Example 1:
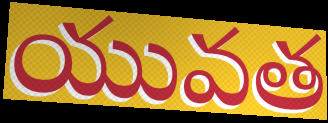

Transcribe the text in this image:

యువత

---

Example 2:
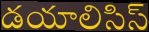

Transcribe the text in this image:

డయాలిసిస్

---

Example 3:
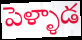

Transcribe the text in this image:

పెళ్ళాడ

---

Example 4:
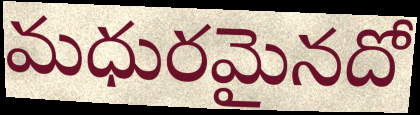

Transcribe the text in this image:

మధురమైనదో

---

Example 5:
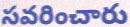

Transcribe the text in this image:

సవరించారు